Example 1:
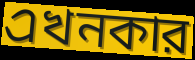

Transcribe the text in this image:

এখনকার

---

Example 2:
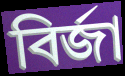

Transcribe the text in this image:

বির্জা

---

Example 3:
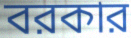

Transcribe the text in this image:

বরকার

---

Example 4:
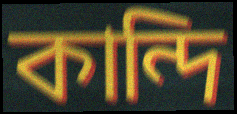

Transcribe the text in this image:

কান্দি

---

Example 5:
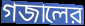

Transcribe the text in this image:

গজালের